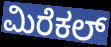
ಮಿರೆಕಲ್